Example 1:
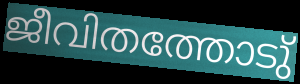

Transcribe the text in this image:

ജീവിതത്തോടു്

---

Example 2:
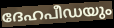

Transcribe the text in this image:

ദേഹപീഡയും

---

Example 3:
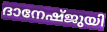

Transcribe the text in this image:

ദാനേഷ്ജുയി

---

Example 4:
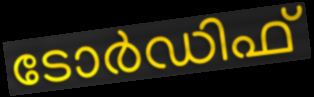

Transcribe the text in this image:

ടോർഡിഫ്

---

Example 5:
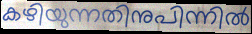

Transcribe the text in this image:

കഴിയുന്നതിനുപിന്നിൽ